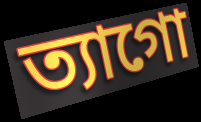
ত্যাগো